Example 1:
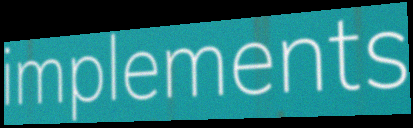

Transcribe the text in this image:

implements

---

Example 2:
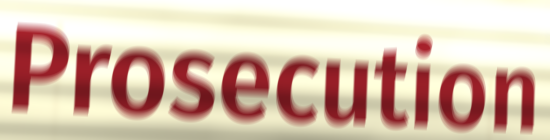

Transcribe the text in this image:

Prosecution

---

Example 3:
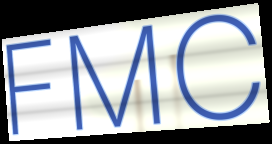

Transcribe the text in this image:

FMC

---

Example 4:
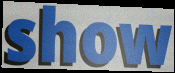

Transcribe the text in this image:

show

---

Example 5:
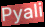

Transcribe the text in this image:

Pyali